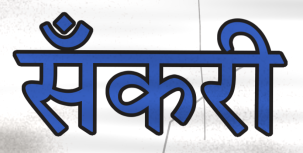
सँकरी